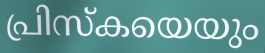
പ്രിസ്കയെയും